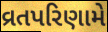
વ્રતપરિણામે